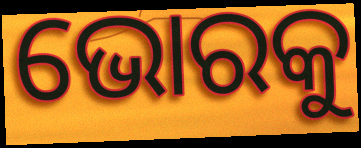
ଭୋରକୁ